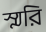
স্মরি